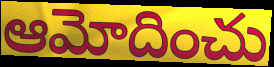
ఆమోదించు